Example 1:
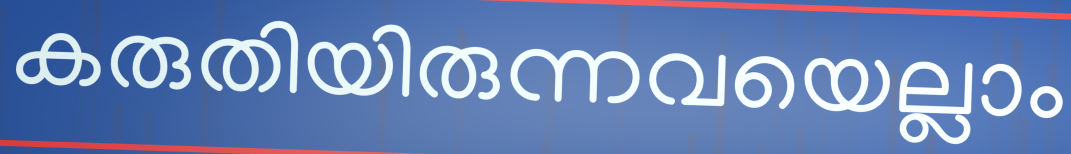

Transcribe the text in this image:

കരുതിയിരുന്നവയെല്ലാം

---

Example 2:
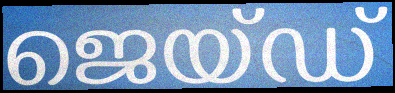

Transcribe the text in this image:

ജെയ്ഡ്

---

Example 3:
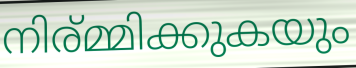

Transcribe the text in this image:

നിര്മ്മിക്കുകയും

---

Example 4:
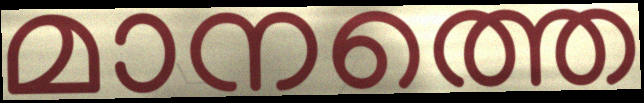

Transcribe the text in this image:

മാനത്തെ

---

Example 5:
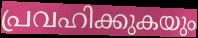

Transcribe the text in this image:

പ്രവഹിക്കുകയും